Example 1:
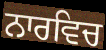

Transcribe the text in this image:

ਨਾਰਵਿਚ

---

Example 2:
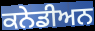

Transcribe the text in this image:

ਕਨੇਡੀਅਨ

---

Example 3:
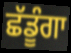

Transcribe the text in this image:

ਛੱਡੂੰਗਾ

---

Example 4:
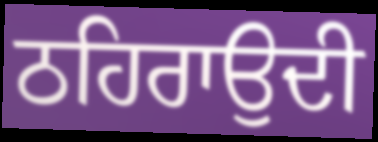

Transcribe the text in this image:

ਠਹਿਰਾਉਦੀ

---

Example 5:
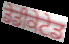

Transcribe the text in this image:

ਡੇਡੀਕੇਟੇਡ